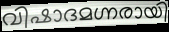
വിഷാദമഗ്നരായി